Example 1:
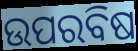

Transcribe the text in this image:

ଉପରବିଷ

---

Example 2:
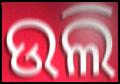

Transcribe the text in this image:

ଉଲି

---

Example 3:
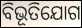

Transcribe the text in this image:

ବିଭୂତିଯୋଗ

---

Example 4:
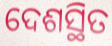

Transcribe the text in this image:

ଦେଶସ୍ଥିତ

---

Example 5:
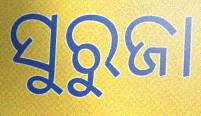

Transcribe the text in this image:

ସୁରୁଜା